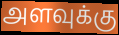
அளவுக்கு